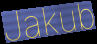
Jakub